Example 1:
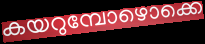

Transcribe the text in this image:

കയറുമ്പോഴൊക്കെ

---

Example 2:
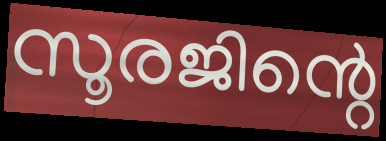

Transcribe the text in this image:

സൂരജിന്റെ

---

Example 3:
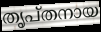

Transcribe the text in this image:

തൃപ്തനായ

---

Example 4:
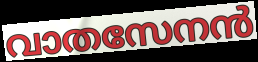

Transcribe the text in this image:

വാതസേനൻ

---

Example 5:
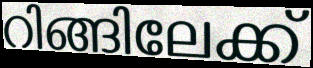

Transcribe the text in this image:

റിങ്ങിലേക്ക്